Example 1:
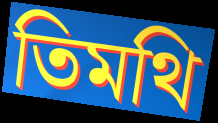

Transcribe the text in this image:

তিমথি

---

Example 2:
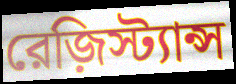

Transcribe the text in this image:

রেজ়িস্ট্যান্স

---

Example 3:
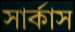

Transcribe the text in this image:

সার্কাস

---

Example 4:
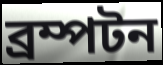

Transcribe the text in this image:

ব্রম্পটন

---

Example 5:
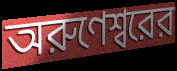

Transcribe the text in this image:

অরুণেশ্বরের